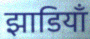
झाडियाँ